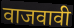
वाजवावी